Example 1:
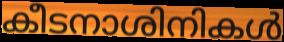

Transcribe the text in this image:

കീടനാശിനികൾ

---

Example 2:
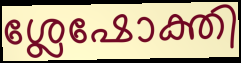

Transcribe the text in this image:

ശ്ലേഷോക്തി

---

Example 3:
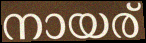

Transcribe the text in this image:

നായര്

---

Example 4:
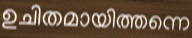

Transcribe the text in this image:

ഉചിതമായിത്തന്നെ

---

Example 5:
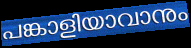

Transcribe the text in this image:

പങ്കാളിയാവാനും